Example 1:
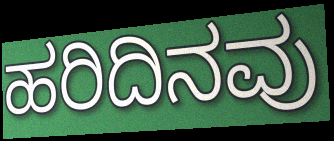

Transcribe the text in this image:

ಹರಿದಿನವು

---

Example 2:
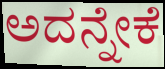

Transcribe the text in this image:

ಅದನ್ನೇಕೆ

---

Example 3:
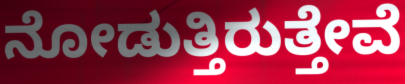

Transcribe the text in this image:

ನೋಡುತ್ತಿರುತ್ತೇವೆ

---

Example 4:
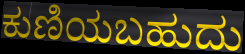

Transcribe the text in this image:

ಕುಣಿಯಬಹುದು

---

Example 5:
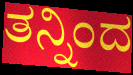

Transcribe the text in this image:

ತನ್ನಿಂದ